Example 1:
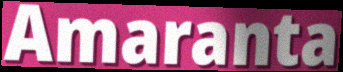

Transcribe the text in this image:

Amaranta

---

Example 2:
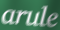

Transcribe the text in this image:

arule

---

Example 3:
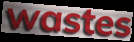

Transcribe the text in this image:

wastes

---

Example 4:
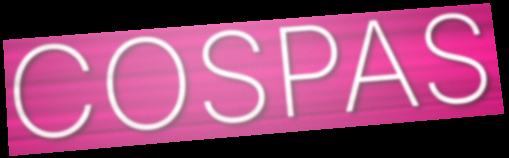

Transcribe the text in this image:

COSPAS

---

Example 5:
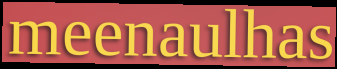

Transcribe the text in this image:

meenaulhas